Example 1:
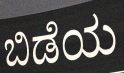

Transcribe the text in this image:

ಬಿಡೆಯ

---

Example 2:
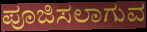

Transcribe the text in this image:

ಪೂಜಿಸಲಾಗುವ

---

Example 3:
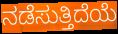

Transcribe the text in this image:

ನಡೆಸುತ್ತಿದೆಯೆ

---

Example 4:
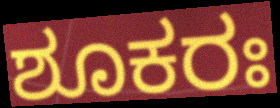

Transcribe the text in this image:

ಶೂಕರಃ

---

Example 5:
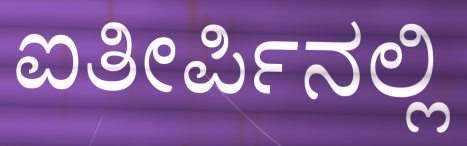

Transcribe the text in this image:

ಐತೀರ್ಪಿನಲ್ಲಿ